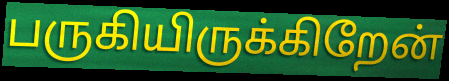
பருகியிருக்கிறேன்